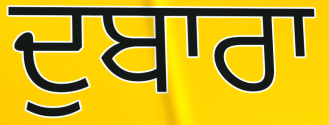
ਦੁਬਾਰਾ